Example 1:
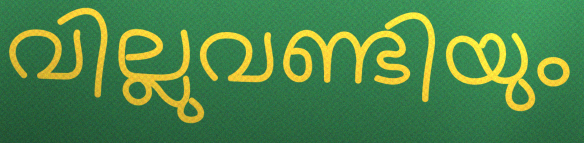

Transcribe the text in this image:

വില്ലുവണ്ടിയും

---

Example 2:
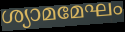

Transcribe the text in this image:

ശ്യാമമേഘം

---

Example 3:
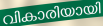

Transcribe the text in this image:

വികാരിയായി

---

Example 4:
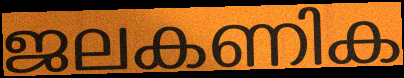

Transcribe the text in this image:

ജലകണിക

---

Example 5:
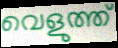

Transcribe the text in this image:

വെളുത്ത്